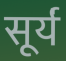
सूर्य॑